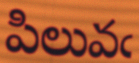
పిలువఁ